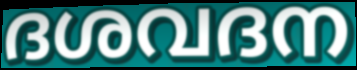
ദശവദന